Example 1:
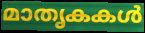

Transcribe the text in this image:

മാതൃകകൾ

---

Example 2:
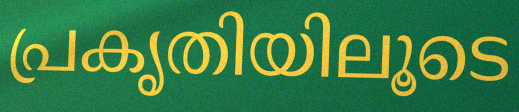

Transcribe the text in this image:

പ്രകൃതിയിലൂടെ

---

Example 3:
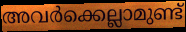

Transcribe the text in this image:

അവർക്കെല്ലാമുണ്ട്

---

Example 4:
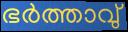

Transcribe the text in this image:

ഭർത്താവു്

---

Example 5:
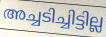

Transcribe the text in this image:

അച്ചടിച്ചിട്ടില്ല